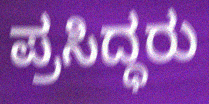
ಪ್ರಸಿದ್ಧರು